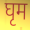
घृम